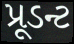
પ્રૂડન્ટ